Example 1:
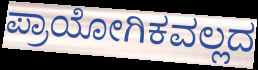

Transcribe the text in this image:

ಪ್ರಾಯೋಗಿಕವಲ್ಲದ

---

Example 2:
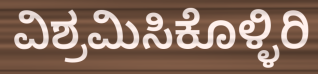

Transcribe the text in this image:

ವಿಶ್ರಮಿಸಿಕೊಳ್ಳಿರಿ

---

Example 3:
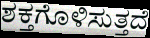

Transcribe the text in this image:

ಶಕ್ತಗೊಳಿಸುತ್ತದೆ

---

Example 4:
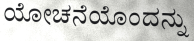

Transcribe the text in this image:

ಯೋಚನೆಯೊಂದನ್ನು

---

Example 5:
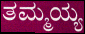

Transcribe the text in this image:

ತಮ್ಮಯ್ಯ